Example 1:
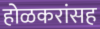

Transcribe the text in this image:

होळकरांसह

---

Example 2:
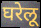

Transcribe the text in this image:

घरेलू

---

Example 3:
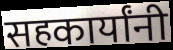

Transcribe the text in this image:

सहकार्यांनी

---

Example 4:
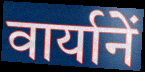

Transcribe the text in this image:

वार्यानें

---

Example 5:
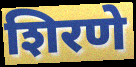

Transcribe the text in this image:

शिरणे